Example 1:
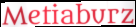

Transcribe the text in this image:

Metiaburz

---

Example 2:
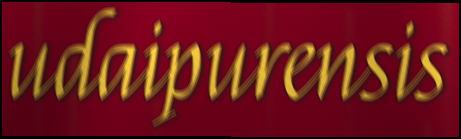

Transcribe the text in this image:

udaipurensis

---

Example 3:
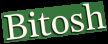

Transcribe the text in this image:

Bitosh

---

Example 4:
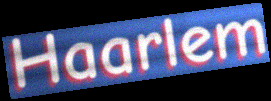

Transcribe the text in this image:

Haarlem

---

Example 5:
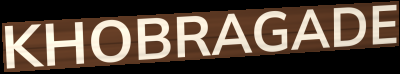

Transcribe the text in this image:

KHOBRAGADE